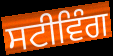
ਸਟੀਵਿੰਗ